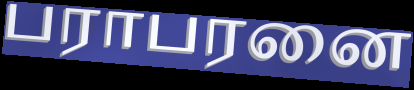
பராபரனை